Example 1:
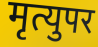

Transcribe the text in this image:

मृत्युपर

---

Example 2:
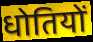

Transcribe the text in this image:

धोतियों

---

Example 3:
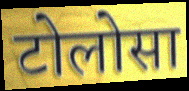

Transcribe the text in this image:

टोलोसा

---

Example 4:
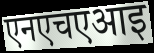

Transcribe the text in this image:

एनएचएआइ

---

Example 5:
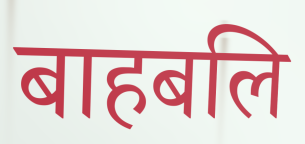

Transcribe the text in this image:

बाहबलि